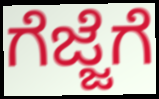
ಗೆಜ್ಜೆಗೆ